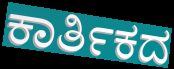
ಕಾರ್ತಿಕದ